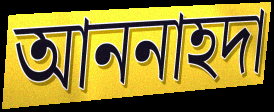
আননাহদা